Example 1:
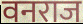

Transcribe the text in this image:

वनराज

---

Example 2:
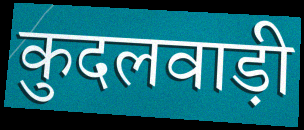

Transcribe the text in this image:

कुदलवाड़ी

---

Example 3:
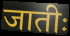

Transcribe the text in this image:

जातीः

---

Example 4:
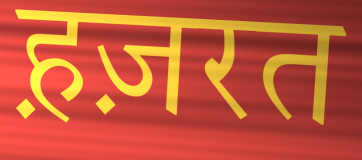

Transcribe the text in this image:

ह़ज़रत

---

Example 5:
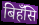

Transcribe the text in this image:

बिहँसि